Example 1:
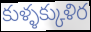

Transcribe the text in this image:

కుళ్ళక్కుళిర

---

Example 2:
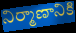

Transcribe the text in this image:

నిర్మాణానికి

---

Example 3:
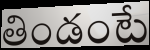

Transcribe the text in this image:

తిండంటే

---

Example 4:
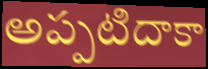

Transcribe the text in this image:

అప్పటిదాకా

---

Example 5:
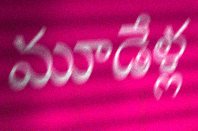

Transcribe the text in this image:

మూడేళ్ల